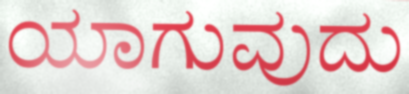
ಯಾಗುವುದು